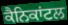
ਕੈਨਿਕਾਂਟਲ